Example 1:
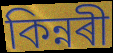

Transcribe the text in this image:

কিন্নৰী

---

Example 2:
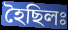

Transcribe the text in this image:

হৈছিলঃ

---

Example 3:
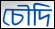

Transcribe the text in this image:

চৌদি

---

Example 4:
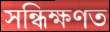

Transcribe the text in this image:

সন্ধিক্ষণত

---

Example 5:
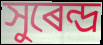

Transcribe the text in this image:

সুৰেন্দ্ৰ